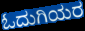
ಓದುಗಿಯರ